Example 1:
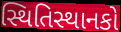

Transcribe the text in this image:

સ્થિતિસ્થાનકો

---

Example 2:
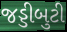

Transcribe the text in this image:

જડ્ડીબુટી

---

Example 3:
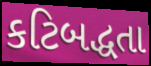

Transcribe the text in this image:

કટિબદ્ધતા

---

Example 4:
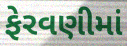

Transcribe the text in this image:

ફેરવણીમાં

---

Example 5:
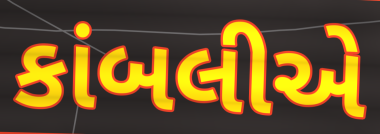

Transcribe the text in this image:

કાંબલીએ